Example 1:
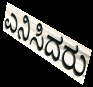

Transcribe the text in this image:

ಎನಿಸಿದರು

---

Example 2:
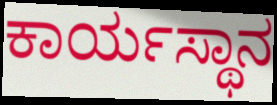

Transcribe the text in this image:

ಕಾರ್ಯಸ್ಥಾನ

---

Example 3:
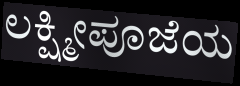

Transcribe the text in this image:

ಲಕ್ಷ್ಮೀಪೂಜೆಯ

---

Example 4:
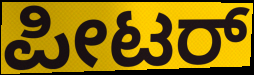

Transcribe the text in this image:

ಪೀಟರ್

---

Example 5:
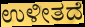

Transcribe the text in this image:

ಉಳೀತದೆ